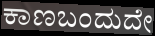
ಕಾಣಬಂದುದೇ